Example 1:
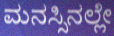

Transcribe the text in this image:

ಮನಸ್ಸಿನಲ್ಲೇ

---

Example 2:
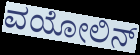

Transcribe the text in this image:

ವಯೋಲಿನ್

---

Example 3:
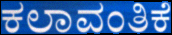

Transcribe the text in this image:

ಕಲಾವಂತಿಕೆ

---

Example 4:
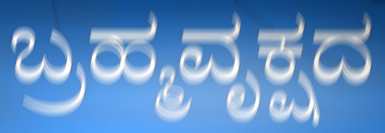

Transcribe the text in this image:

ಬ್ರಹ್ಮವೃಕ್ಷದ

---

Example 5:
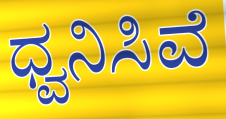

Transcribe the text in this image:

ಧ್ವನಿಸಿವೆ